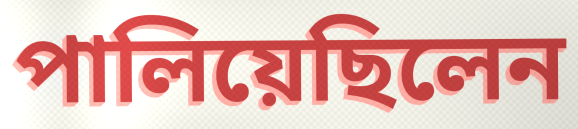
পালিয়েছিলেন